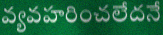
వ్యవహరించలేదనే